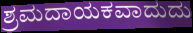
ಶ್ರಮದಾಯಕವಾದುದು